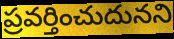
ప్రవర్తించుదునని